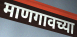
माणगावच्या